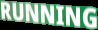
RUNNING